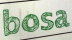
bosa